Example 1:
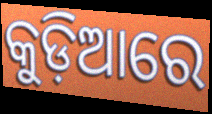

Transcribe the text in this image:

କୁଡ଼ିଆରେ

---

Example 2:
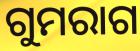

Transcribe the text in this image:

ଗୁମରାଗ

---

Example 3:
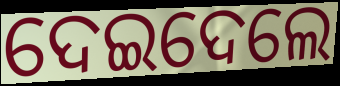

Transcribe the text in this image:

ଦେଇଦେଲେ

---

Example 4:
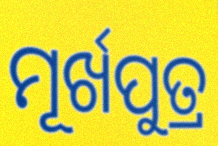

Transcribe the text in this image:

ମୂର୍ଖପୁତ୍ର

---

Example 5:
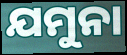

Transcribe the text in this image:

ଯମୁନା